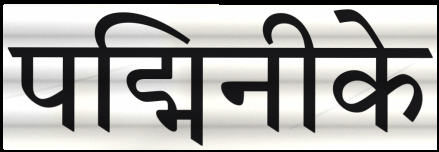
पद्मिनीके